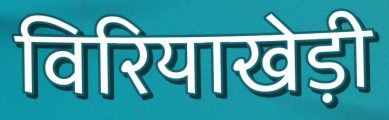
विरियाखेड़ी